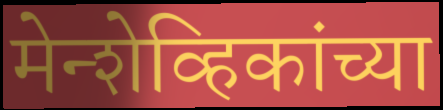
मेन्शेव्हिकांच्या